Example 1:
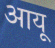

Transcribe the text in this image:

आयू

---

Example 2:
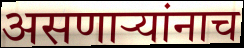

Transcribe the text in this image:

असणार्‍यांनाच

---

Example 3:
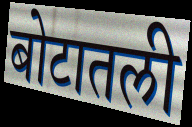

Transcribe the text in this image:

बोटातली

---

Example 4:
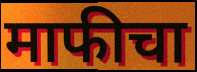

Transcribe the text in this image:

माफीचा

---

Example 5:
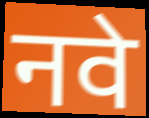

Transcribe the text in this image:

नवे